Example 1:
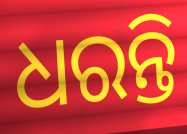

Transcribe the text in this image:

ଧରନ୍ତି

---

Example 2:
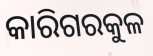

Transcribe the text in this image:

କାରିଗରକୁଳ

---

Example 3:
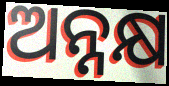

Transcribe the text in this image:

ଅନ୍ନକ୍ଷ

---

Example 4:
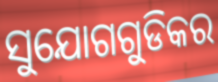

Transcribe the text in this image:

ସୁଯୋଗଗୁଡିକର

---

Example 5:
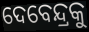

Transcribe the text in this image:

ଦେବେନ୍ଦ୍ରକୁ